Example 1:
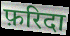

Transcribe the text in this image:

फ़रिदा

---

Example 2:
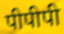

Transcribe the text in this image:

पीपीपी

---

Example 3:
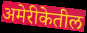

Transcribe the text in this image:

अमेरीकेतील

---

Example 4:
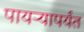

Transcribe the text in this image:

पायऱ्यापर्यंत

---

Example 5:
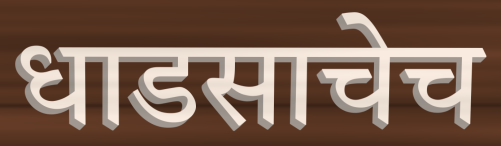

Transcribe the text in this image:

धाडसाचेच